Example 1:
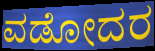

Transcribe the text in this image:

ವಡೋದರ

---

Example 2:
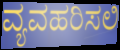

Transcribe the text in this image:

ವ್ಯವಹರಿಸಲಿ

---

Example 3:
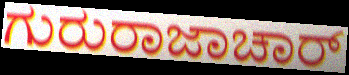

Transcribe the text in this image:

ಗುರುರಾಜಾಚಾರ್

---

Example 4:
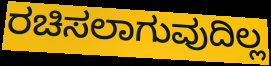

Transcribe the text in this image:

ರಚಿಸಲಾಗುವುದಿಲ್ಲ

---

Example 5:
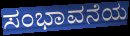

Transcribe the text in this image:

ಸಂಭಾವನೆಯ